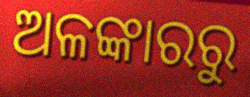
ଅଳଙ୍କାରରୁ